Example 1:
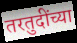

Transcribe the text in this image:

तरतुदींच्या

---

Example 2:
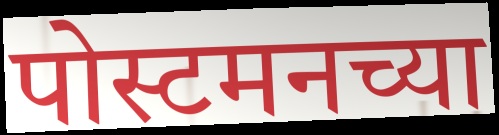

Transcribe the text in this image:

पोस्टमनच्या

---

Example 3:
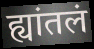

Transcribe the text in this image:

ह्यांतलं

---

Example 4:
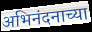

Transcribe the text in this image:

अभिनंदनाच्या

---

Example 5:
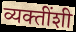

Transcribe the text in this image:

व्यक्तींशी